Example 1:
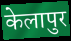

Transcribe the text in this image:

केलापुर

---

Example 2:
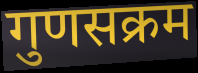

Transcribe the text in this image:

गुणसक्रम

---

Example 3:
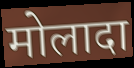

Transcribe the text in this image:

मोलादा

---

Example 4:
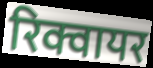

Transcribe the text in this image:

रिक्वायर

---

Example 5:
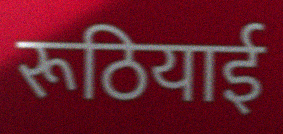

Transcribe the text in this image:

रूठियाई